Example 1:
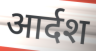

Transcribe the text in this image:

आर्दश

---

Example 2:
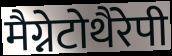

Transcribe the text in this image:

मैग्नेटोथैरेपी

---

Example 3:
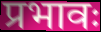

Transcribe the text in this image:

प्रभावः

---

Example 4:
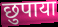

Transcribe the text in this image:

छुपाया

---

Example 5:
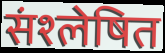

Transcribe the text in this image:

संश्लेषित